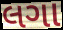
લગા